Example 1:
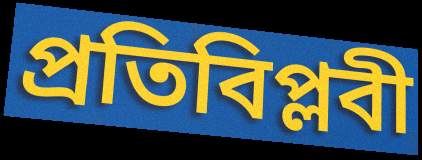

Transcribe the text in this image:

প্রতিবিপ্লবী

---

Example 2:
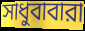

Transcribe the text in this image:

সাধুবাবারা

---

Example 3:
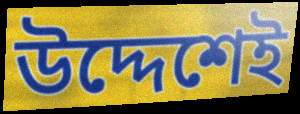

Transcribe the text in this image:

উদ্দেশেই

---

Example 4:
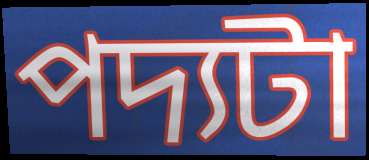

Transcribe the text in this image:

পদ্যটা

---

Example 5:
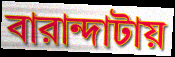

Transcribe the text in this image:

বারান্দাটায়